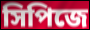
সিপিজে